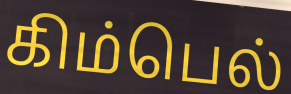
கிம்பெல்